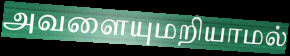
அவளையுமறியாமல்